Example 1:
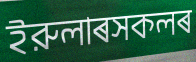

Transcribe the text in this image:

ইৰুলাৰসকলৰ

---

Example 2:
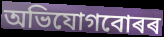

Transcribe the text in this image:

অভিযোগবোৰৰ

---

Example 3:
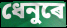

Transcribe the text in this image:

ধেনুৰে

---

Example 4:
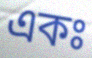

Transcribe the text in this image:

একঃ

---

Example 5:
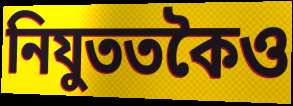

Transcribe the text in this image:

নিযুততকৈও